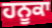
ਹਨੂਕਾ